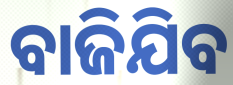
ବାଜିଯିବ